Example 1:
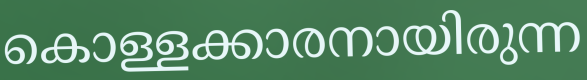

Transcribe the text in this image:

കൊള്ളക്കാരനായിരുന്ന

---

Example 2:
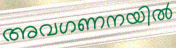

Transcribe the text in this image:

അവഗണനയിൽ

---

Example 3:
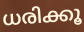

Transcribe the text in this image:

ധരിക്കൂ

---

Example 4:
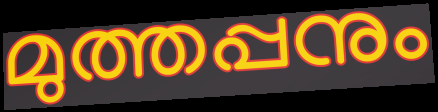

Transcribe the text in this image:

മുത്തപ്പനും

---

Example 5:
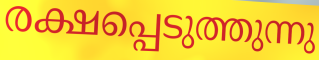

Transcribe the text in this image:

രക്ഷപ്പെടുത്തുന്നു